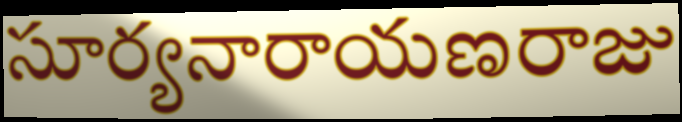
సూర్యనారాయణరాజు